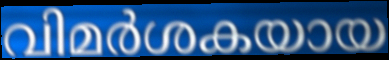
വിമർശകയായ